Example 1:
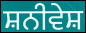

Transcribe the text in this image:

ਸ਼ਨੀਵੇਸ਼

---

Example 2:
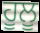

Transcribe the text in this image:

ਹੂਲੂ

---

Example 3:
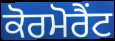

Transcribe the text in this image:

ਕੋਰਮੋਰੈਂਟ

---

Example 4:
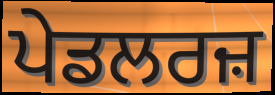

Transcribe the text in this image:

ਪੇਡਲਰਜ਼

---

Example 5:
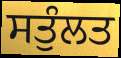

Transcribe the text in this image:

ਸਤੁੰਲਤ